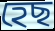
হেছ